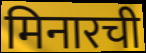
मिनारची